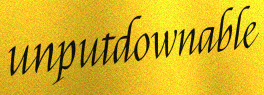
unputdownable